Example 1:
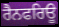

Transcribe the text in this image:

ਰੈਨਫਰਿਊ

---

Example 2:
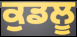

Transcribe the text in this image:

ਕੁਡਲੂ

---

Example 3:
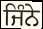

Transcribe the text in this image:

ਜਿੰਨੇ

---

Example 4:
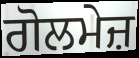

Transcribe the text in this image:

ਗੋਲਮੇਜ਼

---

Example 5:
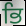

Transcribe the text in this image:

ਭਿ